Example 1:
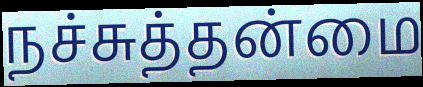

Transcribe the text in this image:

நச்சுத்தன்மை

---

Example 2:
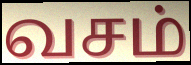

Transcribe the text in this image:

வசம்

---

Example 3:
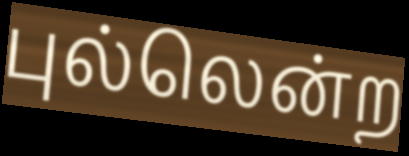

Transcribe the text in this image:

புல்லென்ற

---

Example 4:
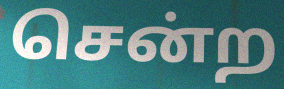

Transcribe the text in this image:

சென்ற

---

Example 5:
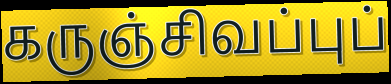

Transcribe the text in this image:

கருஞ்சிவப்புப்